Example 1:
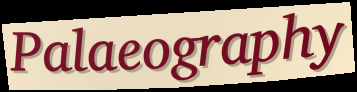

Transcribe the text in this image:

Palaeography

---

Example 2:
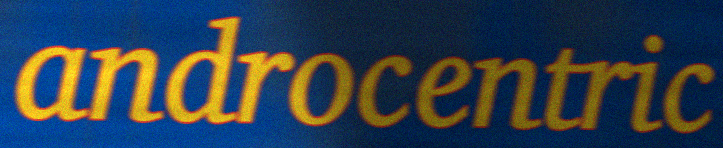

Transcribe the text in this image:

androcentric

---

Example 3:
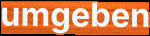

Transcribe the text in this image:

umgeben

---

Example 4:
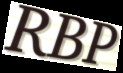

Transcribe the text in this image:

RBP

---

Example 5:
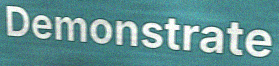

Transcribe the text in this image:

Demonstrate